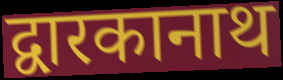
द्वारकानाथ